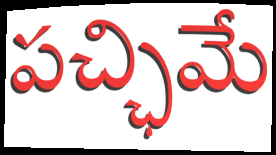
పచ్ఛిమే